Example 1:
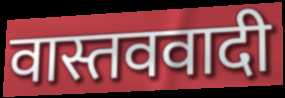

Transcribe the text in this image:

वास्तववादी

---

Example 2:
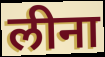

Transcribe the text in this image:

लीना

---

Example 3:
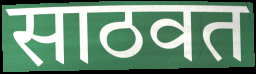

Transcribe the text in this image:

साठवत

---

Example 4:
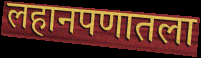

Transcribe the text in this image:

लहानपणातला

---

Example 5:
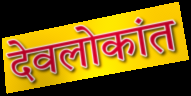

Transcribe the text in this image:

देवलोकांत